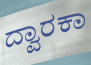
ದ್ವಾರಕಾ